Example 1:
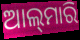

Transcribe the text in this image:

ଆଲ୍‌ମାରି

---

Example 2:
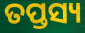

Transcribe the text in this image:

ତପ୍ତସ୍ୟ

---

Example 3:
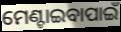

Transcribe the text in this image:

ମେଣ୍ଟାଇବାପାଇଁ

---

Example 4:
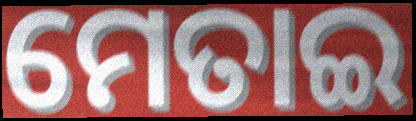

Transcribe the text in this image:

ମେତାଇ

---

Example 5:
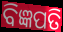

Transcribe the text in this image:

ବିଜ୍ଞପତି